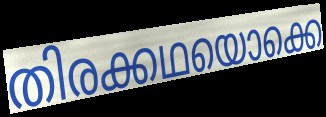
തിരക്കഥയൊക്കെ